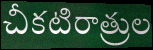
చీకటిరాత్రుల